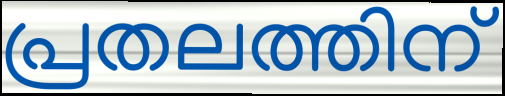
പ്രതലത്തിന്